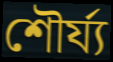
শৌৰ্য্য